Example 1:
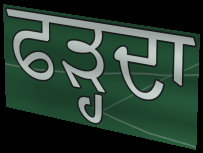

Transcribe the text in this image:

ਫੜ੍ਹਦਾ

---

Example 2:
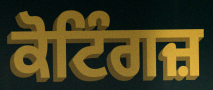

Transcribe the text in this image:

ਕੋਟਿੰਗਜ਼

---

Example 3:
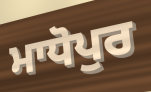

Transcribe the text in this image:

ਮਾਧੋਪੁਰ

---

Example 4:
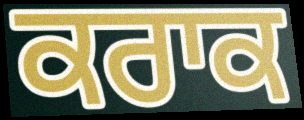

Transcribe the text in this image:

ਕਰਾਕ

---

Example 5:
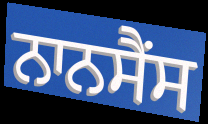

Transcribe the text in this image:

ਨਾਨਸੈਂਸ